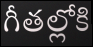
గీతల్లోకి